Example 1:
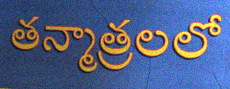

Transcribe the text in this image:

తన్మాత్రలలో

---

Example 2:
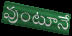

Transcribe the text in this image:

వుంటూనే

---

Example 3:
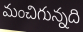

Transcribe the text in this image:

మంచిగున్నది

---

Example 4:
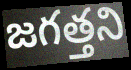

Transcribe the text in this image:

జగత్తని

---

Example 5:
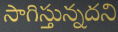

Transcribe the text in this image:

సాగిస్తున్నదని